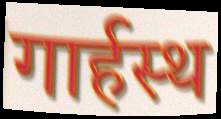
गार्हस्थ